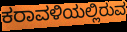
ಕರಾವಳಿಯಲ್ಲಿರುವ